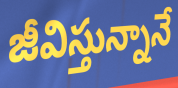
జీవిస్తున్నానే